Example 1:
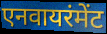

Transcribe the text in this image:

एनवायरंमेंट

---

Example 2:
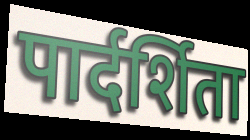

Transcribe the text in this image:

पार्दर्शिता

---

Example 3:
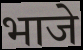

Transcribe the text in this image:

भाजे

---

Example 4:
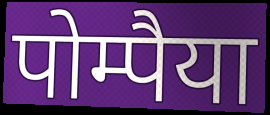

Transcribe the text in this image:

पोम्पैया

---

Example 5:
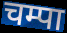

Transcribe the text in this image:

चम्पा